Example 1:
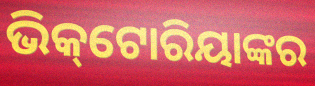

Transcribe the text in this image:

ଭିକ୍‌ଟୋରିୟାଙ୍କର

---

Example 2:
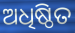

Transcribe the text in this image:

ଅଧିଷ୍ଠିତ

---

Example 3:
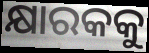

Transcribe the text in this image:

କ୍ଷାରକକୁ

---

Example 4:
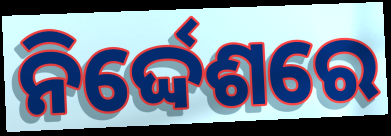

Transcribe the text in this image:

ନିର୍ଦ୍ଦେଶରେ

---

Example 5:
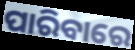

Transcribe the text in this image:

ପାରିବାରେ